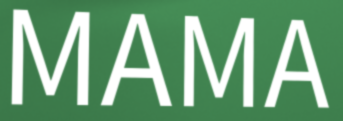
MAMA